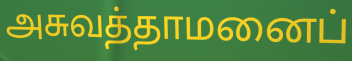
அசுவத்தாமனைப்